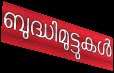
ബുദ്ധിമുട്ടുകൾ